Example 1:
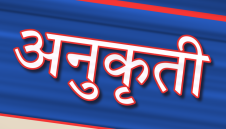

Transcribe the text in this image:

अनुकृती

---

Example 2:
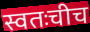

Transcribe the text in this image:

स्वतःचीच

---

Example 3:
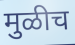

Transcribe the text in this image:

मुळीच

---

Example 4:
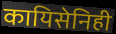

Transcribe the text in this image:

कायिसेनिही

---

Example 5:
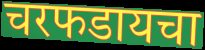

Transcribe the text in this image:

चरफडायचा